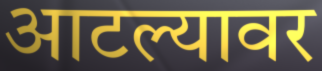
आटल्यावर